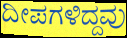
ದೀಪಗಳಿದ್ದವು